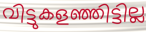
വിട്ടുകളഞ്ഞിട്ടില്ല